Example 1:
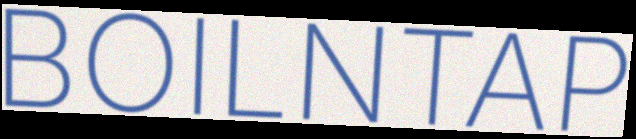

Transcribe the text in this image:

BOILNTAP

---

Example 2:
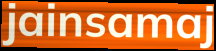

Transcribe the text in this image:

jainsamaj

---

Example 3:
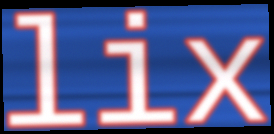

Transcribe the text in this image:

lix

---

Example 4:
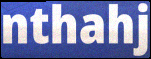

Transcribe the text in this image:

nthahj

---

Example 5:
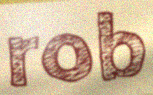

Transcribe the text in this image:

rob